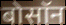
बोसॉन